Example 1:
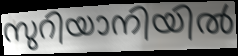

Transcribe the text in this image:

സുറിയാനിയിൽ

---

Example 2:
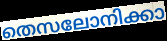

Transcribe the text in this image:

തെസലോനിക്കാ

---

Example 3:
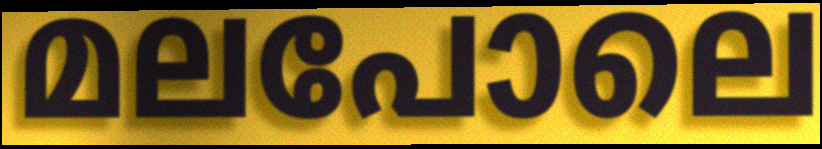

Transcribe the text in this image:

മലപോലെ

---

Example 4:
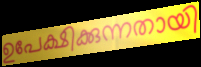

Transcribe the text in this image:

ഉപേക്ഷിക്കുന്നതായി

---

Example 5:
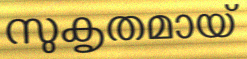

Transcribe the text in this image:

സുകൃതമായ്